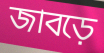
জাবড়ে